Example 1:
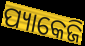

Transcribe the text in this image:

ପ୍ୟାକେଜି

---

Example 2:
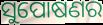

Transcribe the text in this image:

ସୁପୋଷଣର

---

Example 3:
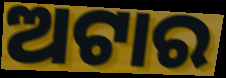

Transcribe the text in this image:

ଅଟାର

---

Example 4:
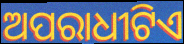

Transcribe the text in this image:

ଅପରାଧୀଟିଏ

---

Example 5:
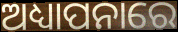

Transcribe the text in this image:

ଅଧ୍ୟାପନାରେ